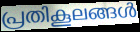
പ്രതികൂലങ്ങൾ